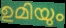
ഉമിയും